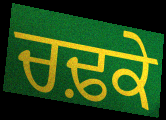
ਚਢ਼ਕੇ